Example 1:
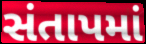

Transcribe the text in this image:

સંતાપમાં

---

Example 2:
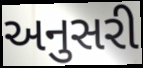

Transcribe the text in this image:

અનુસરી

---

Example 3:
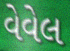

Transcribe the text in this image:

વેવેલ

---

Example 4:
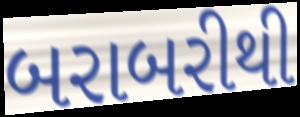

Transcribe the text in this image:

બરાબરીથી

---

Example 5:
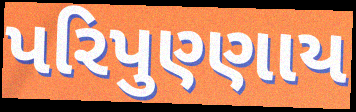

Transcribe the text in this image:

પરિપુણ્ણાય